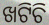
ଖଟିଚି